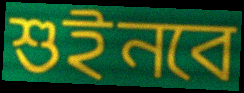
শুইনবে